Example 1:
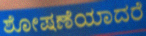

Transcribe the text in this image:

ಶೋಷಣೆಯಾದರೆ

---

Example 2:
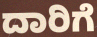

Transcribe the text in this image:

ದಾರಿಗೆ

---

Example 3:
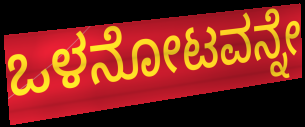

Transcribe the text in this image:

ಒಳನೋಟವನ್ನೇ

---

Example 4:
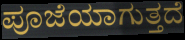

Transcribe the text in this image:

ಪೂಜೆಯಾಗುತ್ತದೆ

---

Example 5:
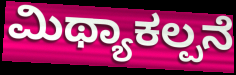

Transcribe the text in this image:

ಮಿಥ್ಯಾಕಲ್ಪನೆ